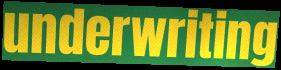
underwriting